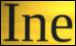
Ine